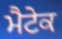
ਮੈਟੇਕ